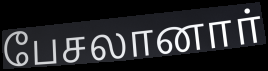
பேசலானார்